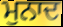
ਮੁਨਾਦ